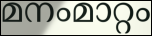
മനംമാറ്റം